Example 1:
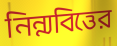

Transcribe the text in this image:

নিন্মবিত্তের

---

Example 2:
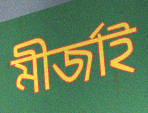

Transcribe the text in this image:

মীর্জাই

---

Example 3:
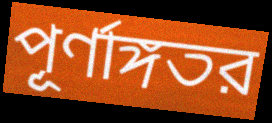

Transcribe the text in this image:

পূর্ণাঙ্গতর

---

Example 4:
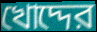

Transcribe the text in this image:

খোদ্দের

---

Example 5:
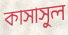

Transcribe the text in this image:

কাসাসুল